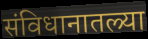
संविधानातल्या